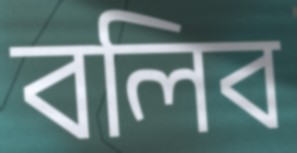
বলিব